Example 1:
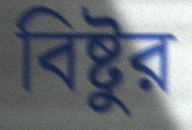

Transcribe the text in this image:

বিষ্টুর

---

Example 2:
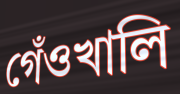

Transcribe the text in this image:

গেঁওখালি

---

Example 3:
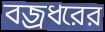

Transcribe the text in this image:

বজ্রধরের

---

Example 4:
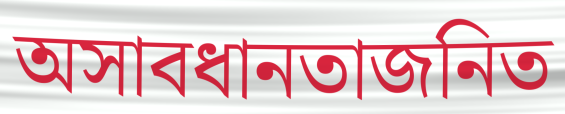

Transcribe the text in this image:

অসাবধানতাজনিত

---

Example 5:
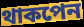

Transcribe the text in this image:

থাকপেন